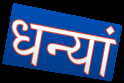
धन्यां